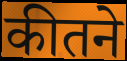
कीतने